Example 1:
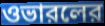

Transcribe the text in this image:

ওভারলের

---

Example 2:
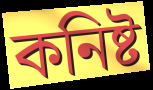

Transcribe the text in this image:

কনিষ্ট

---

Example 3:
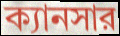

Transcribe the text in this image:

ক্যানসার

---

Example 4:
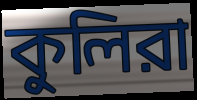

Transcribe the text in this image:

কুলিরা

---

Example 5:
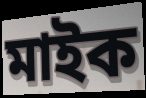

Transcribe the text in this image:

মাইক